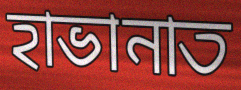
হাভানাত